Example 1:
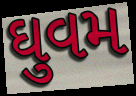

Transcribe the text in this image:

ઘુવમ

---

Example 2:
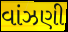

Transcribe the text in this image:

વાંઝણી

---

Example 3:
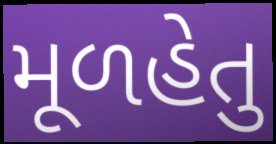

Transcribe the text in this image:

મૂળહેતુ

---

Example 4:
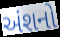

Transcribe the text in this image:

અંશનો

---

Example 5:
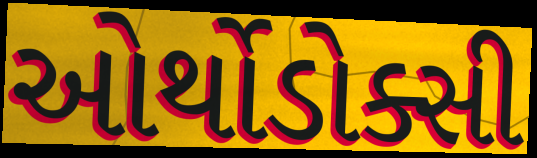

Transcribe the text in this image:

ઓર્થોડોક્સી